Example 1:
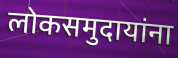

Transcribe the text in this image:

लोकसमुदायांना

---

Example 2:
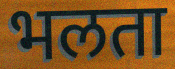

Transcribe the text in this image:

भलता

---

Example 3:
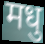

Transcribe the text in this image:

मधु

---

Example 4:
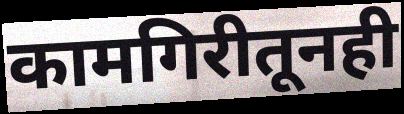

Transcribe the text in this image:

कामगिरीतूनही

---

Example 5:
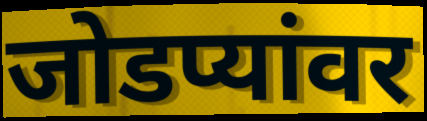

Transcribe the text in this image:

जोडप्यांवर